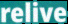
relive